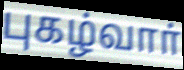
புகழ்வார்